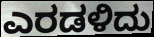
ಎರಡಳಿದು